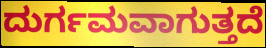
ದುರ್ಗಮವಾಗುತ್ತದೆ